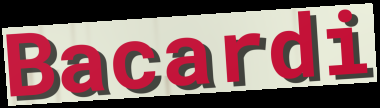
Bacardi